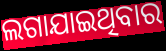
ଲଗାଯାଇଥିବାର